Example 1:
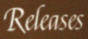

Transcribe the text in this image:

Releases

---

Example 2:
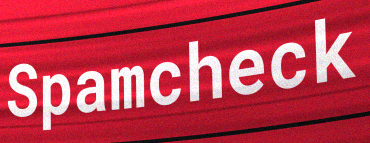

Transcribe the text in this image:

Spamcheck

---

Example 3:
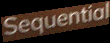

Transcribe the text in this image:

Sequential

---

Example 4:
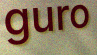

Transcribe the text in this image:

guro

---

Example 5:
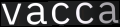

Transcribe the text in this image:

vacca